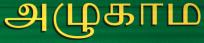
அழுகாம